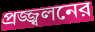
প্রজ্জ্বলনের